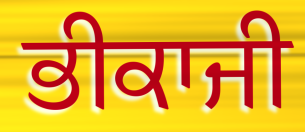
ਭੀਕਾਜੀ